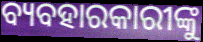
ବ୍ୟବହାରକାରୀଙ୍କୁ